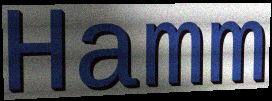
Hamm